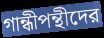
গান্ধীপন্থীদের